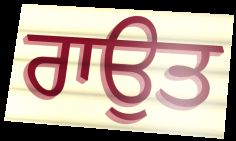
ਰਾਉਤ